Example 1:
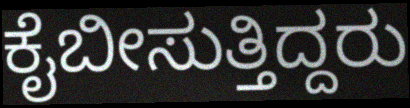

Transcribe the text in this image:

ಕೈಬೀಸುತ್ತಿದ್ದರು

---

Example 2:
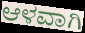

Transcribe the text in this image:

ಆಳವಾಗಿ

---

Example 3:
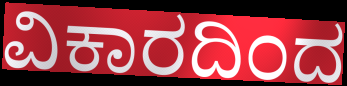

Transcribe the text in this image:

ವಿಕಾರದಿಂದ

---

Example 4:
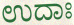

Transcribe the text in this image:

ಉದಾಃ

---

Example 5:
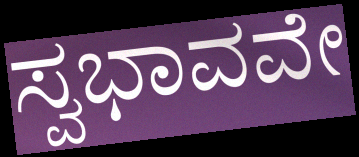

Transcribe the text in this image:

ಸ್ವಭಾವವೇ